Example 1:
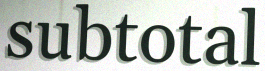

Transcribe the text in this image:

subtotal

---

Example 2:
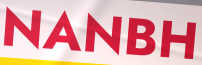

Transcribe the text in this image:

NANBH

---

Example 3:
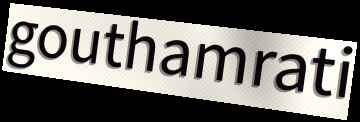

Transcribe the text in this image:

gouthamrati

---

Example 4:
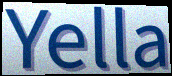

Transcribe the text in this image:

Yella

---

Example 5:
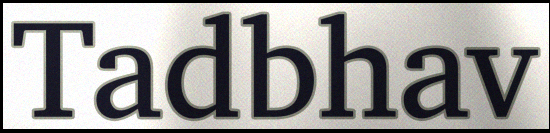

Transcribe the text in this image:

Tadbhav